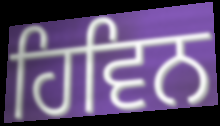
ਹਿਵਿਨ